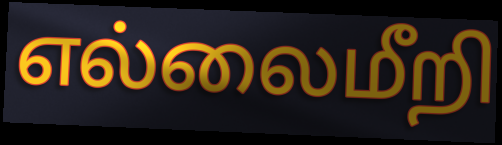
எல்லைமீறி